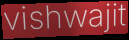
vishwajit